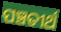
ପଞ୍ଚତୀର୍ଥ